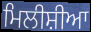
ਮਿਲੀਸ਼ੀਆ